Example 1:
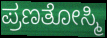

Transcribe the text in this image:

ಪ್ರಣತೋಸ್ಮಿ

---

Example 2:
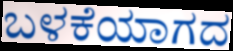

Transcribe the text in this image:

ಬಳಕೆಯಾಗದ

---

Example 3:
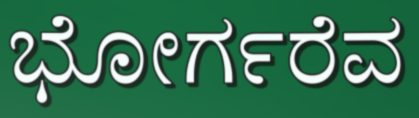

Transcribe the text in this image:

ಭೋರ್ಗರೆವ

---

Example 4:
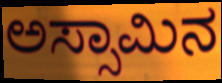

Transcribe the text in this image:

ಅಸ್ಸಾಮಿನ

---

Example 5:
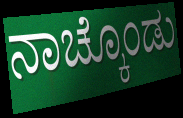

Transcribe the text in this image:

ನಾಚ್ಕೊಂಡು